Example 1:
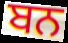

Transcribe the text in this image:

ਬਨ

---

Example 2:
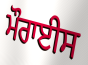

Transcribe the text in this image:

ਮੌਰਾਈਸ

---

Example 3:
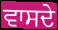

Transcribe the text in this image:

ਵਾਸਦੇ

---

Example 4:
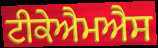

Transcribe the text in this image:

ਟੀਕੇਐਮਐਸ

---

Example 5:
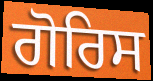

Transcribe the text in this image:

ਗੋਰਿਸ